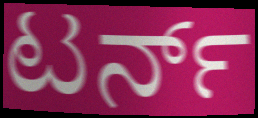
ಟರ್ನ್